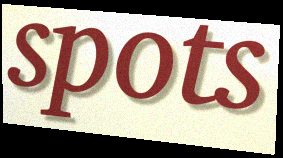
spots